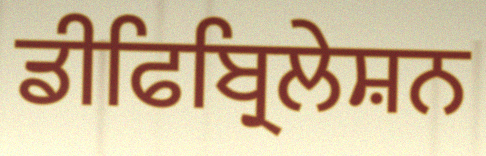
ਡੀਫਿਬ੍ਰਿਲੇਸ਼ਨ